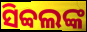
ସିବ୍ବଲଙ୍କ